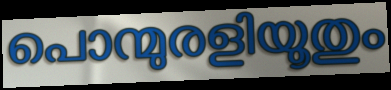
പൊന്മുരളിയൂതും